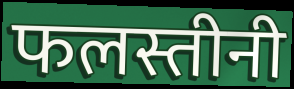
फलस्तीनी